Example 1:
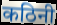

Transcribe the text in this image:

कठिनी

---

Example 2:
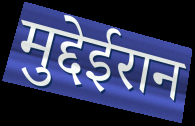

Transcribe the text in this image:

मुद्देईरान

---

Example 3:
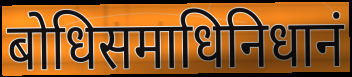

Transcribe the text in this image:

बोधिसमाधिनिधानं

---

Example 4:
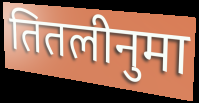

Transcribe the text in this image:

तितलीनुमा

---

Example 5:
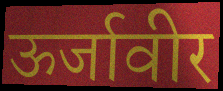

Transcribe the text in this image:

ऊर्जावीर